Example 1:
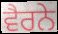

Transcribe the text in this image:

ਵੈਰਨੇ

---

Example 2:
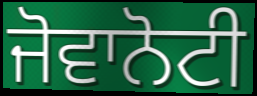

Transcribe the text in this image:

ਜੋਵਾਨੋਟੀ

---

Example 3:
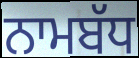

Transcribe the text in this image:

ਨਾਮਬੱਧ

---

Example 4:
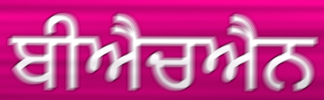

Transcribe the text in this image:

ਬੀਐਚਐਨ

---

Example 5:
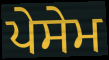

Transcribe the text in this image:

ਪੇਸੇਮ